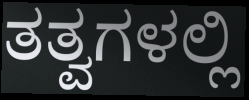
ತತ್ವಗಳಲ್ಲಿ